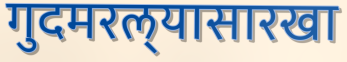
गुदमरल्यासारखा